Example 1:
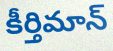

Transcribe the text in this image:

కీర్తిమాన్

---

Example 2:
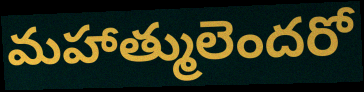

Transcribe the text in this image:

మహాత్ములెందరో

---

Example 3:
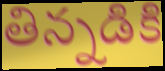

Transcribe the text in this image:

తిన్నడికి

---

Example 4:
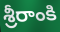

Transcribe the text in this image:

శ్రీరాంకి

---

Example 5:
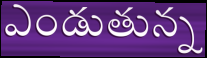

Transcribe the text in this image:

ఎండుతున్న